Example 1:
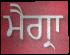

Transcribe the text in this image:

ਮੈਗ੍ਰਾ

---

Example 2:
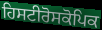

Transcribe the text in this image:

ਹਿਸਟੀਰੋਸਕੋਪਿਕ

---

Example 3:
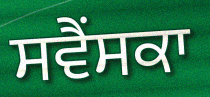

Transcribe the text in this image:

ਸਵੈਂਸਕਾ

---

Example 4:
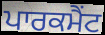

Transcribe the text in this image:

ਪਾਰਕਮੈਂਟ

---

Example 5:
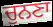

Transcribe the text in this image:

ਚੁਨਣਾ